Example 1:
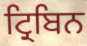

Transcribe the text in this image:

ਟ੍ਰਿਬਿਨ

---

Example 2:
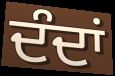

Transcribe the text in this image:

ਦੰਦਾਂ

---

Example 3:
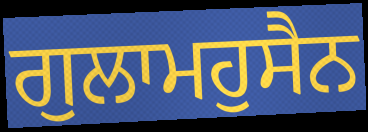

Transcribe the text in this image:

ਗੁਲਾਮਹੁਸੈਨ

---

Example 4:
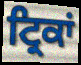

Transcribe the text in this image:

ਟ੍ਰਿਕਾਂ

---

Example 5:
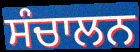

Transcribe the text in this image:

ਸੰਚਾਲਨ